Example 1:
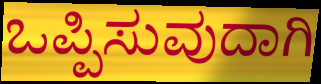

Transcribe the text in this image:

ಒಪ್ಪಿಸುವುದಾಗಿ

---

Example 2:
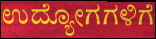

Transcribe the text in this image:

ಉದ್ಯೋಗಗಳಿಗೆ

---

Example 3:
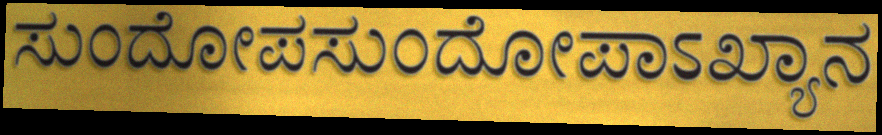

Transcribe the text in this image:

ಸುಂದೋಪಸುಂದೋಪಾಽಖ್ಯಾನ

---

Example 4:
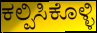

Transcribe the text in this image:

ಕಲ್ಪಿಸಿಕೊಳ್ಳಿ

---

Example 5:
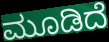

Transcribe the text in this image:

ಮೂಡಿದೆ